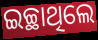
ଇଚ୍ଛାଥିଲେ